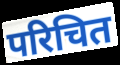
परिचित